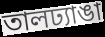
তালঢ্যাঙা